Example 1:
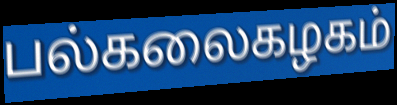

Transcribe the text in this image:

பல்கலைகழகம்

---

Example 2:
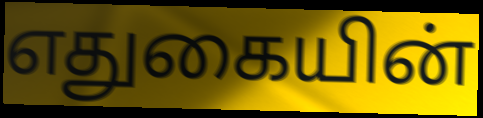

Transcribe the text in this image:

எதுகையின்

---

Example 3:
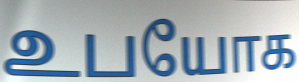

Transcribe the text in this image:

உபயோக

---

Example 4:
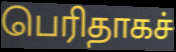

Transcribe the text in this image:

பெரிதாகச்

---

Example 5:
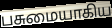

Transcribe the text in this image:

பசுமையாகிய